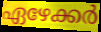
ഏഴേക്കർ